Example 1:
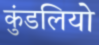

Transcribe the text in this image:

कुंडलियो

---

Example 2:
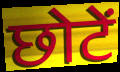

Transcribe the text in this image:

छोटें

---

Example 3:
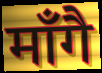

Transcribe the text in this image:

माँगै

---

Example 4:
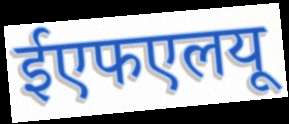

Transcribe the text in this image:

ईएफएलयू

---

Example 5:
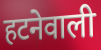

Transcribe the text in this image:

हटनेवाली